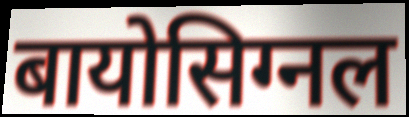
बायोसिग्नल